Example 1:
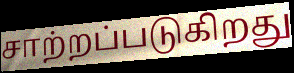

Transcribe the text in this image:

சாற்றப்படுகிறது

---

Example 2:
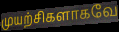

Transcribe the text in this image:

முயற்சிகளாகவே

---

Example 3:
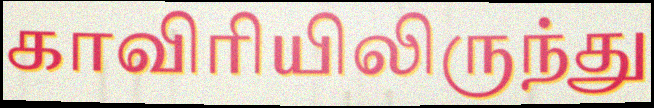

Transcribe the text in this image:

காவிரியிலிருந்து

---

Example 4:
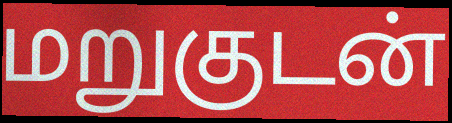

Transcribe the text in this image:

மறுகுடன்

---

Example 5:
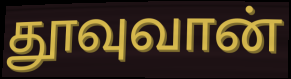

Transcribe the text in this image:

தூவுவான்